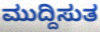
ಮುದ್ದಿಸುತ